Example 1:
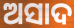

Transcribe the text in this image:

ଅସାଦ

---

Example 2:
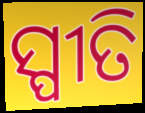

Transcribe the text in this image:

ସ୍ପୀତି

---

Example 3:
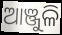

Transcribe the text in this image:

ଆଞ୍ଜୁଳି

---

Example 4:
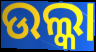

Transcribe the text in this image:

ଉଲ୍କା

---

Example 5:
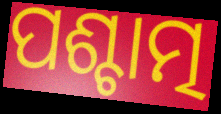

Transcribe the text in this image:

ପଶ୍ଚାତ୍ମ